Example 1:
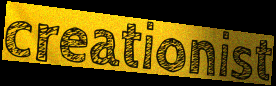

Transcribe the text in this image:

creationist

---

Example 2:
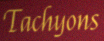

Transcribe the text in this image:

Tachyons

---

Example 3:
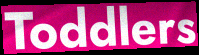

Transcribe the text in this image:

Toddlers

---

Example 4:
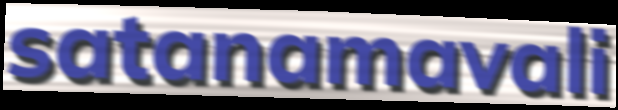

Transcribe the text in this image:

satanamavali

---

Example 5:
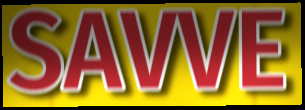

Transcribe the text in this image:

SAVVE